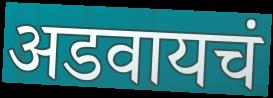
अडवायचं